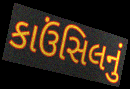
કાઉંસિલનું